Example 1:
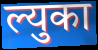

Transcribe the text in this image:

ल्युका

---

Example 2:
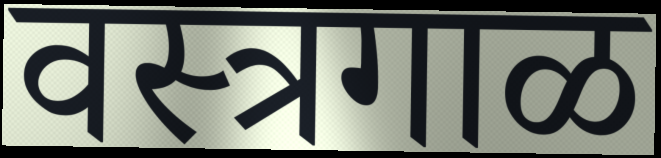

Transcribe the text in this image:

वस्त्रगाळ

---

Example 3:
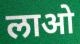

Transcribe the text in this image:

लाओ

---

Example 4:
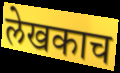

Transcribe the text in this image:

लेखकाच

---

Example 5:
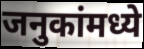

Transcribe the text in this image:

जनुकांमध्ये